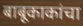
बाबूकाकांचा